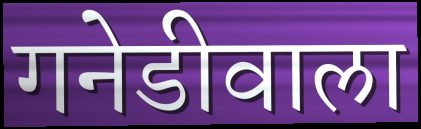
गनेडीवाला